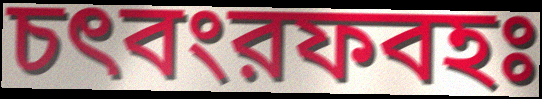
চৎবংরফবহঃ